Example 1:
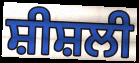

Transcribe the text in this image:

ਸ਼ੀਸ਼ਲੀ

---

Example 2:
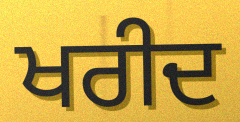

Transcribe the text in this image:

ਖਰੀਦ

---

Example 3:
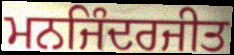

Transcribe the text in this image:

ਮਨਜਿੰਦਰਜੀਤ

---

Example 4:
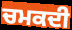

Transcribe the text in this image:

ਚਮਕਦੀ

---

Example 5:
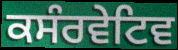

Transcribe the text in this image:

ਕਸੰਰਵੇਟਿਵ